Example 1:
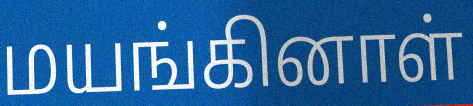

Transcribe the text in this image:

மயங்கினாள்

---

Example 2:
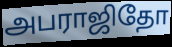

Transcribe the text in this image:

அபராஜிதோ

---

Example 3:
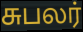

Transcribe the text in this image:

சுபலர்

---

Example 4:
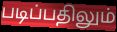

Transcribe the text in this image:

படிப்பதிலும்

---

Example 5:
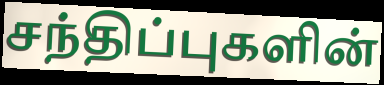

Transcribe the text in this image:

சந்திப்புகளின்